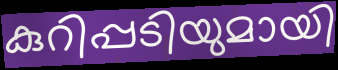
കുറിപ്പടിയുമായി